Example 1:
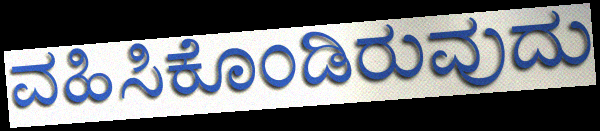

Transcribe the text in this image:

ವಹಿಸಿಕೊಂಡಿರುವುದು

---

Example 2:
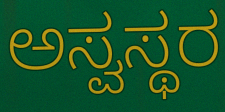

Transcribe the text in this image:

ಅಸ್ವಸ್ಥರ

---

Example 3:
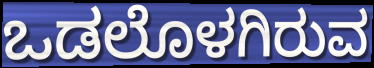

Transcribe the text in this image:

ಒಡಲೊಳಗಿರುವ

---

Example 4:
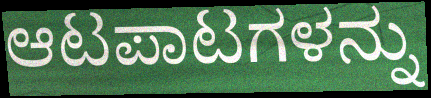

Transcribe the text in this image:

ಆಟಪಾಟಗಳನ್ನು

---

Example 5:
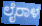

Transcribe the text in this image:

ಲೈರಾಳ